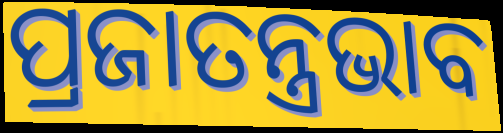
ପ୍ରଜାତନ୍ତ୍ରଭାବ